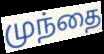
முந்தை